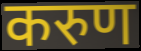
करुण